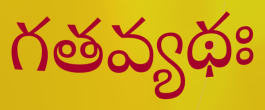
గతవ్యథః